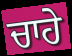
ਚਾਹੇ